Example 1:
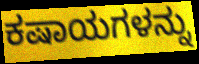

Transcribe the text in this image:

ಕಷಾಯಗಳನ್ನು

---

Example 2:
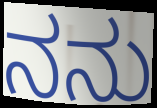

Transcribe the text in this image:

ನನು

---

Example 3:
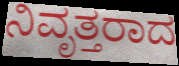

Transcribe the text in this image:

ನಿವೃತ್ತರಾದ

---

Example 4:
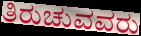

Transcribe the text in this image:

ತಿರುಚುವವರು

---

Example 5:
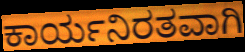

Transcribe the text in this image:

ಕಾರ್ಯನಿರತವಾಗಿ